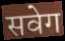
सवेग